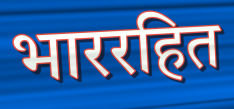
भाररहित